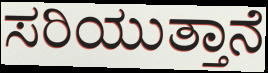
ಸರಿಯುತ್ತಾನೆ